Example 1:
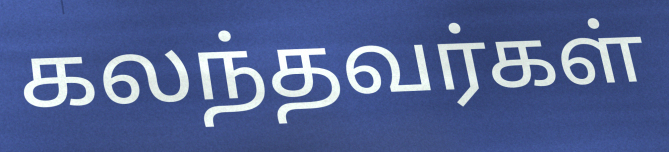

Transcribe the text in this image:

கலந்தவர்கள்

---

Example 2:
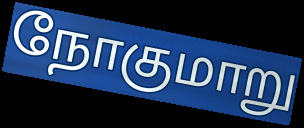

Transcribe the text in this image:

நோகுமாறு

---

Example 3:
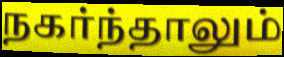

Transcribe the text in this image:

நகர்ந்தாலும்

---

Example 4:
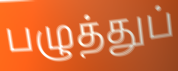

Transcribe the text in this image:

பழுத்துப்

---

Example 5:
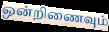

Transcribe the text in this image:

ஒன்றிணைவும்